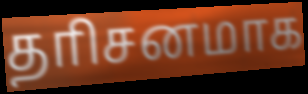
தரிசனமாக